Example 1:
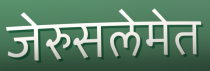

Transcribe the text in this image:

जेरुसलेमेत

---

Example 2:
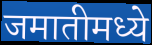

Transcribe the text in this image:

जमातीमध्ये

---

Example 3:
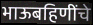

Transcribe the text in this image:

भाऊबहिणींचे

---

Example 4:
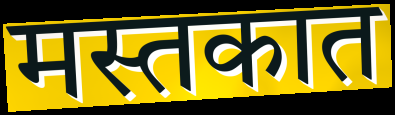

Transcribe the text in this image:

मस्तकात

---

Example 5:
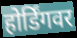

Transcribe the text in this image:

होर्डिंगवर